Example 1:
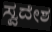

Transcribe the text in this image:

ಸ್ವದೇಶ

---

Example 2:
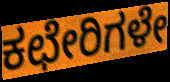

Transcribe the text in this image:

ಕಛೇರಿಗಳೇ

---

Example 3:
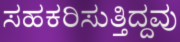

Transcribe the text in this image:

ಸಹಕರಿಸುತ್ತಿದ್ದವು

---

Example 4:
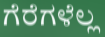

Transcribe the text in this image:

ಗೆರೆಗಳೆಲ್ಲ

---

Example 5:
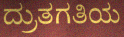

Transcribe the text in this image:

ದ್ರುತಗತಿಯ